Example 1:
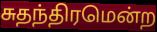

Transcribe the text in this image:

சுதந்திரமென்ற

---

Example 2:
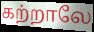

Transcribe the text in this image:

கற்றாலே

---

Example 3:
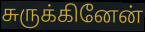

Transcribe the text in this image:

சுருக்கினேன்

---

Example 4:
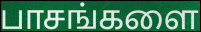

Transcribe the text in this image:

பாசங்களை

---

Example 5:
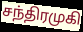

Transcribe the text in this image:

சந்திரமுகி